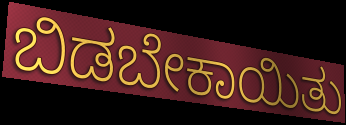
ಬಿಡಬೇಕಾಯಿತು